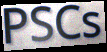
PSCs